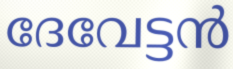
ദേവേട്ടൻ